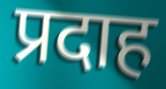
प्रदाह